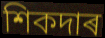
শিকদাৰ